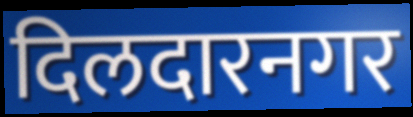
दिलदारनगर